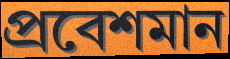
প্রবেশমান